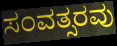
ಸಂವತ್ಸರವು